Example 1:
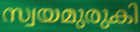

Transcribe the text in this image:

സ്വയമുരുകി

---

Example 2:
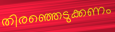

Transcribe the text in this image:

തിരഞ്ഞെടുക്കണം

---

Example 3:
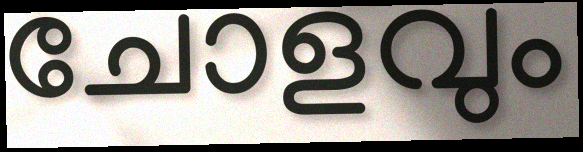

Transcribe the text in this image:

ചോളവും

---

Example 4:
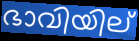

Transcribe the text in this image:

ഭാവിയില്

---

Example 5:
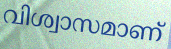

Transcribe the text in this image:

വിശ്വാസമാണ്